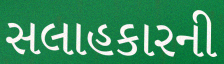
સલાહકારની